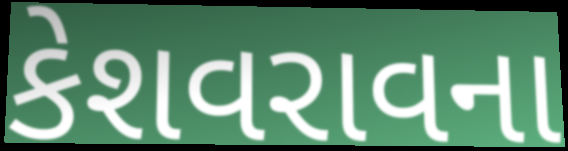
કેશવરાવના